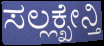
ಸಲ್ಲಕ್ಖೇನ್ತಿ